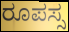
ರೂಪಸ್ಸ